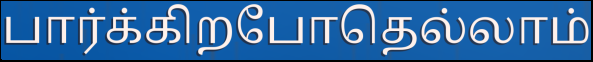
பார்க்கிறபோதெல்லாம்